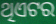
ଥିଏଟର